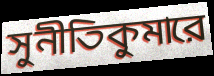
সুনীতিকুমারে